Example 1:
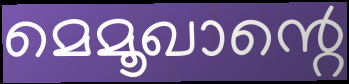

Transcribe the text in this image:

മെമൂഖാന്റെ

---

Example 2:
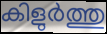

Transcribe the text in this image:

കിളുർത്തു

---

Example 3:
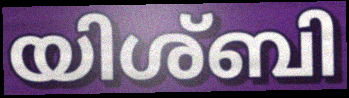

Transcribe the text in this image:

യിശ്ബി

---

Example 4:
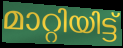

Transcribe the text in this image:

മാറ്റിയിട്ട്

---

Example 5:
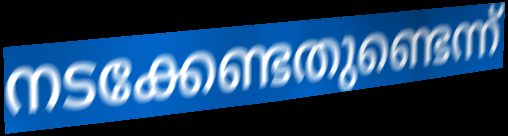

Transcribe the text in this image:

നടക്കേണ്ടതുണ്ടെന്ന്